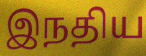
இநதிய